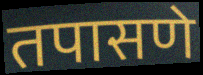
तपासणे